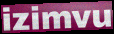
izimvu